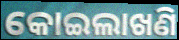
କୋଇଲାଖଣି